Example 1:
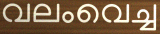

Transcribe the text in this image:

വലംവെച്ച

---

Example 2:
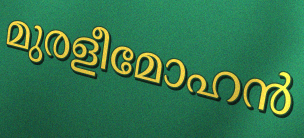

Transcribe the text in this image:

മുരളീമോഹൻ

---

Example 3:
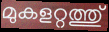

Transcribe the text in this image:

മുകളറ്റത്തു്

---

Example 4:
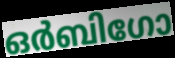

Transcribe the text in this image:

ഒർബിഗോ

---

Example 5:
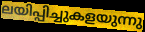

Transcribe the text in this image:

ലയിപ്പിച്ചുകളയുന്നു